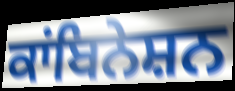
ਕਾਂਬਿਨੇਸ਼ਨ